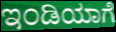
ಇಂಡಿಯಾಗೆ